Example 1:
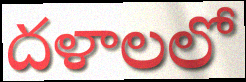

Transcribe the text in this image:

దళాలలో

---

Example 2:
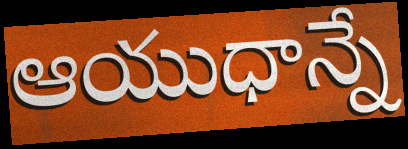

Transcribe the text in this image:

ఆయుధాన్నే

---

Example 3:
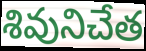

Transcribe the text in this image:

శివునిచేత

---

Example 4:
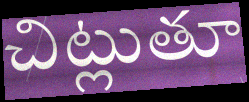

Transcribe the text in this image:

చిట్లుతూ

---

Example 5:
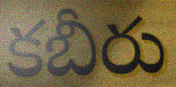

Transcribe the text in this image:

కబీరు